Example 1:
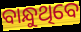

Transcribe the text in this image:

ବାନ୍ଧୁଥିବେ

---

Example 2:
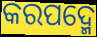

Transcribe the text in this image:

କରପଦ୍ମେ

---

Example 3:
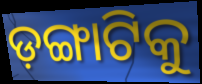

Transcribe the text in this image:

ଡ଼ଙ୍ଗାଟିକୁ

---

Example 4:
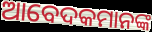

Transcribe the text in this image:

ଆବେଦକମାନଙ୍କ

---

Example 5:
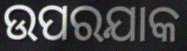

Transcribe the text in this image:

ଉପରଯାକ